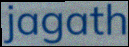
jagath